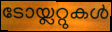
ടോയ്ലറ്റുകൾ